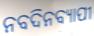
ନବଦିନବ୍ୟାପୀ